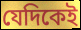
যেদিকেই